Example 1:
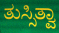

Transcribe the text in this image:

ತುಸ್ಸಿತ್ವಾ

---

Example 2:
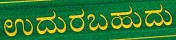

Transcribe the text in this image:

ಉದುರಬಹುದು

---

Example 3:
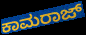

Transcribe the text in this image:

ಕಾಮರಾಜ್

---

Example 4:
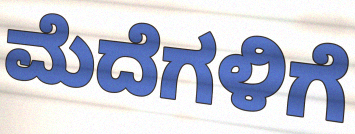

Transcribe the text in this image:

ಮೆದೆಗಳಿಗೆ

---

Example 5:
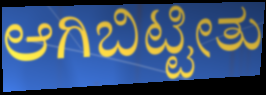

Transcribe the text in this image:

ಆಗಿಬಿಟ್ಟೀತು